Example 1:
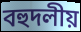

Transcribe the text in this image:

বহুদলীয়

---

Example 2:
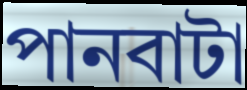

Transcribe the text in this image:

পানবাটা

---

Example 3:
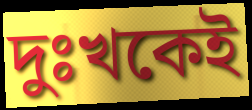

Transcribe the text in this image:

দুঃখকেই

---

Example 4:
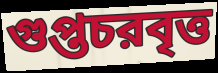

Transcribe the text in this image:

গুপ্তচরবৃত্ত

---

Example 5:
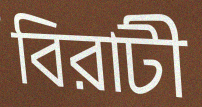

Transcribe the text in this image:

বিরাটী